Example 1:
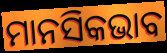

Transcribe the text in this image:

ମାନସିକଭାବ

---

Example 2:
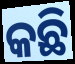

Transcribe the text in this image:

କଛି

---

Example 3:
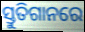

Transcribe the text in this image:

ସ୍ତୁତିଗାନରେ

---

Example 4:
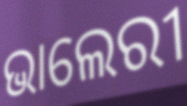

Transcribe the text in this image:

ଭାଲେରୀ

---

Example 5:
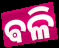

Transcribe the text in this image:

ଵଳି